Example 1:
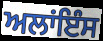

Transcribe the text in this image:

ਅਲਾਂਇੰਸ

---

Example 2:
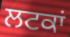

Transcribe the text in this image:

ਲਟਕਾਂ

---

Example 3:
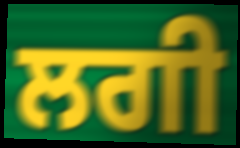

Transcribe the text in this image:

ਲਗੀ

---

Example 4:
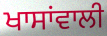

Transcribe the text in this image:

ਖਾਸਾਂਵਾਲੀ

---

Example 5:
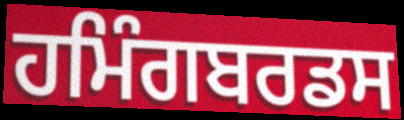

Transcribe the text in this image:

ਹਮਿੰਗਬਰਡਸ